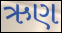
ઋણ